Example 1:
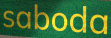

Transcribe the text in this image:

saboda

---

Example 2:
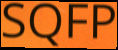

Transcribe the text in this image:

SQFP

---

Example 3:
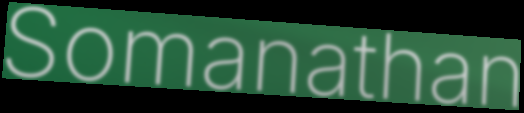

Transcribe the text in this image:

Somanathan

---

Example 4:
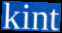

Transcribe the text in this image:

kint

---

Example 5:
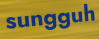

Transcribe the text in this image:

sungguh